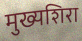
मुख्यशिरा